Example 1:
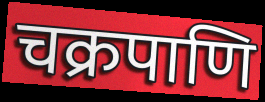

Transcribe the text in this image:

चक्रपाणि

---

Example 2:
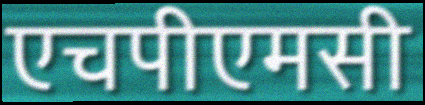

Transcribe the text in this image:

एचपीएमसी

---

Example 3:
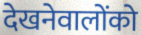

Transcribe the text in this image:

देखनेवालोंको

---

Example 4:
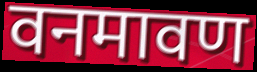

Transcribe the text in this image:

वनमावण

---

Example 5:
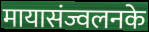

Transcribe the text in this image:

मायासंज्वलनके